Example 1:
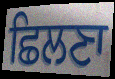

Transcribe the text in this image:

ਛਿਲਣਾ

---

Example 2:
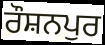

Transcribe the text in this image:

ਰੌਸ਼ਨਪੁਰ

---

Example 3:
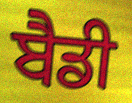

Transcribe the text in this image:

ਬੈਡੀ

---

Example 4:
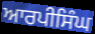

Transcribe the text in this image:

ਆਰਪੀਸਿੰਘ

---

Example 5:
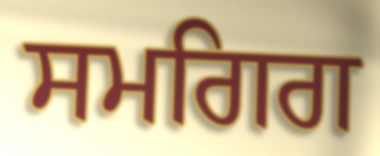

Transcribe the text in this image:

ਸਮਗਿਗ